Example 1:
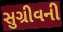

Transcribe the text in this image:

સુગ્રીવની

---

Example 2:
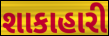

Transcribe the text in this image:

શાકાહારી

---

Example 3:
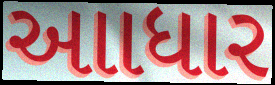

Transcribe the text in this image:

આાધાર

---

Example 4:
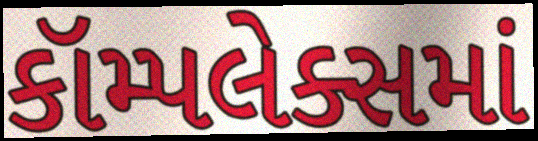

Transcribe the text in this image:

કૉમ્પલેક્સમાં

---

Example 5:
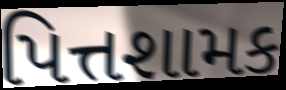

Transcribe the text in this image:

પિત્તશામક